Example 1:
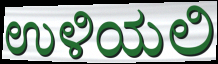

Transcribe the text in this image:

ಉಳಿಯಲಿ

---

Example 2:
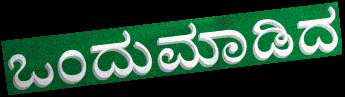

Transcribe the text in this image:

ಒಂದುಮಾಡಿದ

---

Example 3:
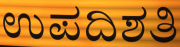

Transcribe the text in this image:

ಉಪದಿಶತಿ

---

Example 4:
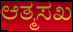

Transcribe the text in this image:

ಆತ್ಮಸಖ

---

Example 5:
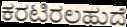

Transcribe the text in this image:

ಕರಟಿರಲಹುದೆ